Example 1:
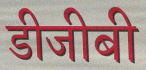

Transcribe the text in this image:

डीजीबी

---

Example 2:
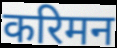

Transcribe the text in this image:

करिमन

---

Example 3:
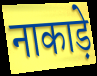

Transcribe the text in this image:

नाकाड़े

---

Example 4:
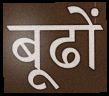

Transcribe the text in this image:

बूढों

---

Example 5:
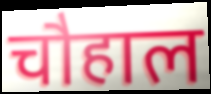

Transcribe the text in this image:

चौहाल